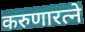
करुणारत्ने